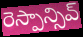
రెస్పాన్సివ్